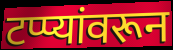
टप्प्यांवरून